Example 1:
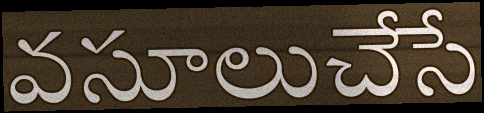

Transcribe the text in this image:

వసూలుచేసే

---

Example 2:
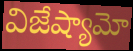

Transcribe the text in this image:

విజేష్యామో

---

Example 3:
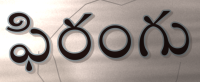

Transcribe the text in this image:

ఫిరంగు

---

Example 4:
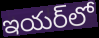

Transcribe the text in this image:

ఇయర్‌లో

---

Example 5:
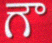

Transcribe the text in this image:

గౌ